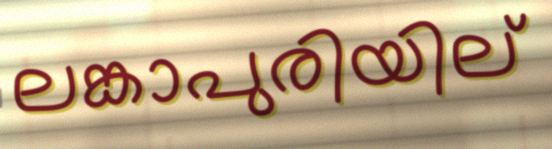
ലങ്കാപുരിയില്